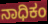
ನಾಧಿಕಂ